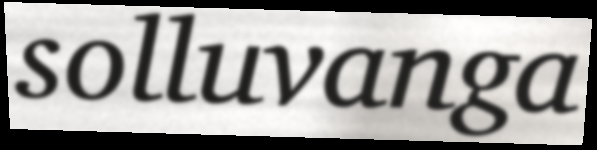
solluvanga